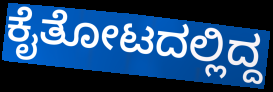
ಕೈತೋಟದಲ್ಲಿದ್ದ